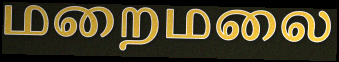
மறைமலை